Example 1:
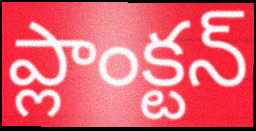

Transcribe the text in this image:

ప్లాంక్టన్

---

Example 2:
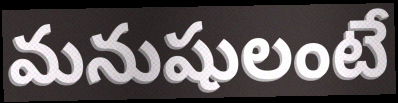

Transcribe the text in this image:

మనుషులంటే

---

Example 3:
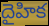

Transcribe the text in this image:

దైహిక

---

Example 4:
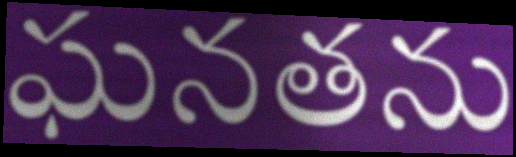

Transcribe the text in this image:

ఘనతను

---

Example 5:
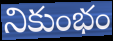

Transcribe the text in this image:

నికుంభం